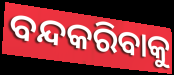
ବନ୍ଦକରିବାକୁ